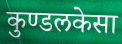
कुण्डलकेसा